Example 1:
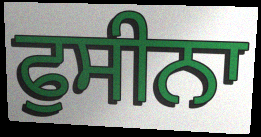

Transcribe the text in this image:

ਫੁਸੀਨਾ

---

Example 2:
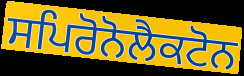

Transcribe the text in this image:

ਸਪਿਰੋਨੋਲੈਕਟੋਨ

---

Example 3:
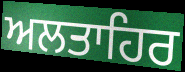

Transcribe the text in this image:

ਅਲਤਾਹਿਰ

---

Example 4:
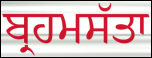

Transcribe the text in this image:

ਬ੍ਰਹਮਸੱਤਾ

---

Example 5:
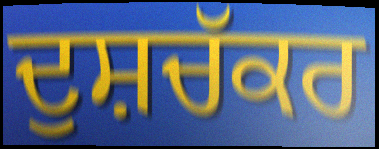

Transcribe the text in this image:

ਦੁਸ਼ਚੱਕਰ